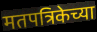
मतपत्रिकेच्या